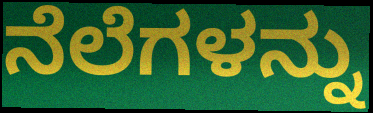
ನೆಲೆಗಳನ್ನು